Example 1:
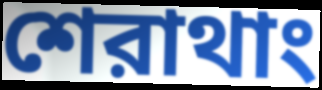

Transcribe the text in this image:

শেরাথাং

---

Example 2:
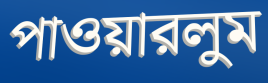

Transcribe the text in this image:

পাওয়ারলুম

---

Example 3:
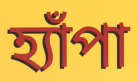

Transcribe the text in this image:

হ্যাঁপা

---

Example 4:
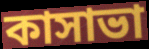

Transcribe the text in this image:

কাসাভা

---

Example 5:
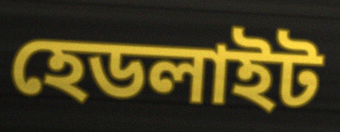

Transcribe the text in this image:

হেডলাইট